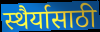
स्थैर्यासाठी